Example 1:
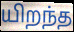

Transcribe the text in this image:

யிறந்த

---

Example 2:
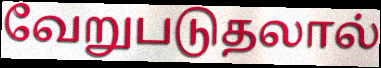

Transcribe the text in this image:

வேறுபடுதலால்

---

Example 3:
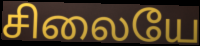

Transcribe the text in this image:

சிலையே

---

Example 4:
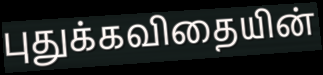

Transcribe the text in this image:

புதுக்கவிதையின்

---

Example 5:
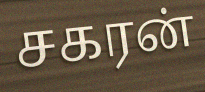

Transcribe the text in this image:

சகரன்